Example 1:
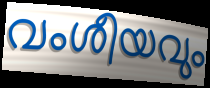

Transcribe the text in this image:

വംശീയവും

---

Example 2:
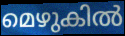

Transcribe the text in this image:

മെഴുകിൽ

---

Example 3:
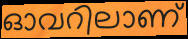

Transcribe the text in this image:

ഓവറിലാണ്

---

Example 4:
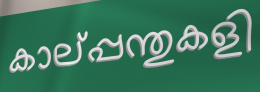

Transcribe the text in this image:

കാല്പ്പന്തുകളി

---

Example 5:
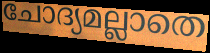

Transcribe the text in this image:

ചോദ്യമല്ലാതെ